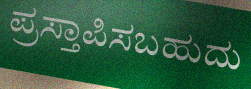
ಪ್ರಸ್ತಾಪಿಸಬಹುದು